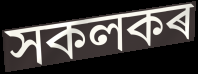
সকলকৰ